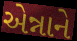
એન્નાને